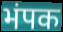
भंपक